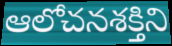
ఆలోచనశక్తిని